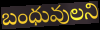
బంధువులని